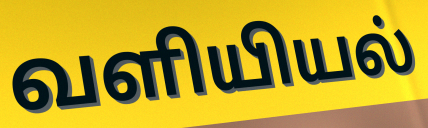
வளியியல்